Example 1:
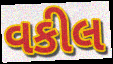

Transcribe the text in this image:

વકીલ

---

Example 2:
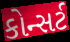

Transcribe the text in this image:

કોન્સર્ટ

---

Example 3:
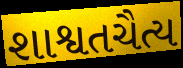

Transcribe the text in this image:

શાશ્વતચૈત્ય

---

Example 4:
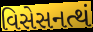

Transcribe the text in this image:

વિસેસનત્થં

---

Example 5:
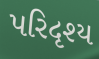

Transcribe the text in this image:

પરિદૃશ્ય